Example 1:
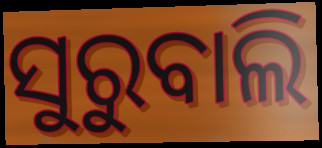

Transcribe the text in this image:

ସୁରୁବାଲି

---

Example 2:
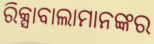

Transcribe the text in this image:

ରିକ୍ସାବାଲାମାନଙ୍କର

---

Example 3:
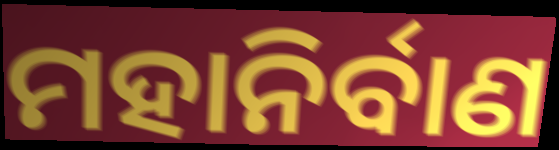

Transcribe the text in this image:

ମହାନିର୍ବାଣ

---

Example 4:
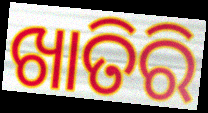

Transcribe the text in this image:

ଖାତିରି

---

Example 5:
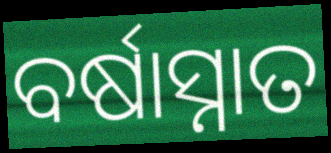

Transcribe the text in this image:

ବର୍ଷାସ୍ନାତ